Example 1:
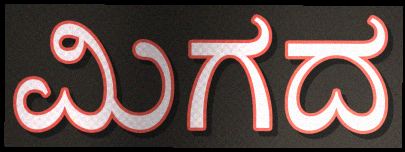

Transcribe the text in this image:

ಮಿಗದ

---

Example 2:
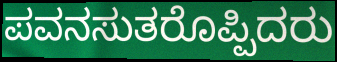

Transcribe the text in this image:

ಪವನಸುತರೊಪ್ಪಿದರು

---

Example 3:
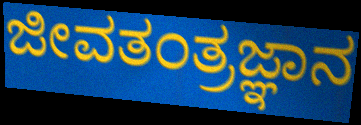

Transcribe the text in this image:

ಜೀವತಂತ್ರಜ್ಞಾನ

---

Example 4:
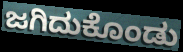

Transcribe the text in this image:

ಜಗಿದುಕೊಂಡು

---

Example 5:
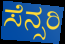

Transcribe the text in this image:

ಸೆನ್ಸರಿ